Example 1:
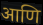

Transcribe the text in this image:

आणि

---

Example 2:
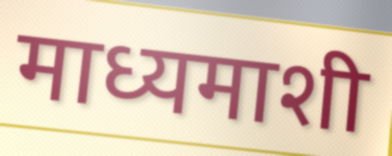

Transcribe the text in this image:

माध्यमाशी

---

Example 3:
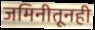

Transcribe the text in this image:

जमिनीतूनही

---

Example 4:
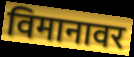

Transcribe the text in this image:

विमानावर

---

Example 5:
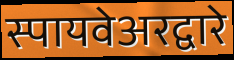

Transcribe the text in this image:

स्पायवेअरद्वारे